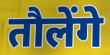
तौलेंगे